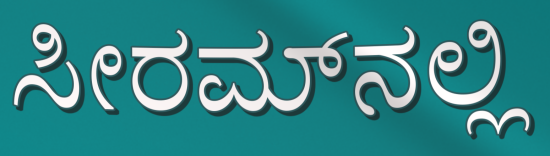
ಸೀರಮ್‌ನಲ್ಲಿ